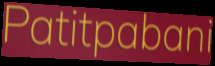
Patitpabani